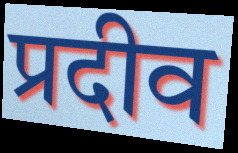
प्रदीव